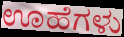
ಊಹೆಗಳು